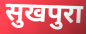
सुखपुरा